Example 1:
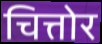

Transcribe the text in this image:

चित्तोर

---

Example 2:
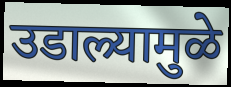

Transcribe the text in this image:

उडाल्यामुळे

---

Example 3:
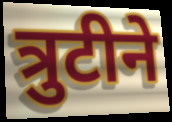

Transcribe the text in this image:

त्रुटीने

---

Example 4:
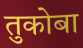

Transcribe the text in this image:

तुकोबा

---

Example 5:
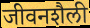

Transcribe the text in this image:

जीवनशैली